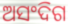
ଅସଂଦିଗ